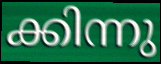
ക്കിന്നു